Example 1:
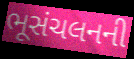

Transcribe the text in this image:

ભૂસંચલનની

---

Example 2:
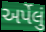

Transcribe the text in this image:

અર્પેલું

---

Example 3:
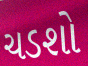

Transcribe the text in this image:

ચડશો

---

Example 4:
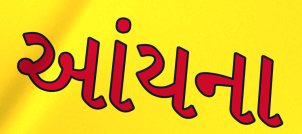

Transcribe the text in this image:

આંયના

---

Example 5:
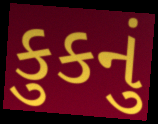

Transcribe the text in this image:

કુકનું